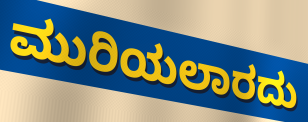
ಮುರಿಯಲಾರದು